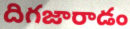
దిగజారాడం